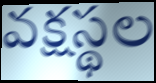
వక్షస్థల